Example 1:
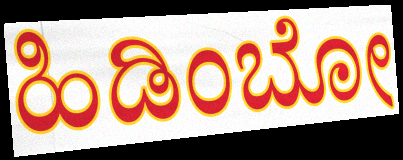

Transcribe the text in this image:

ಹಿಡಿಂಬೋ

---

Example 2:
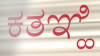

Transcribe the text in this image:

ಕತಞ್ಹಿ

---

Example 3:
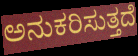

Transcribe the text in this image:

ಅನುಕರಿಸುತ್ತದೆ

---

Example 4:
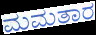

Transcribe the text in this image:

ಮಮತಾರ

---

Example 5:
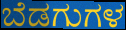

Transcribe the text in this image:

ಬೆಡಗುಗಳ